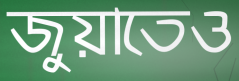
জুয়াতেও